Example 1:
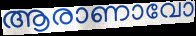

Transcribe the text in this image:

ആരാണാവോ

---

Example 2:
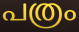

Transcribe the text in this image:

പത്രം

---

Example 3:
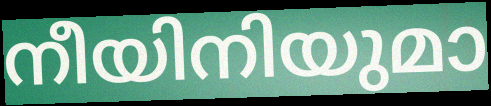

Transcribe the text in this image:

നീയിനിയുമാ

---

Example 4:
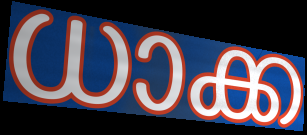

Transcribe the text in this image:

ധാക്ക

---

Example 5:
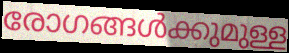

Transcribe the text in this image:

രോഗങ്ങൾക്കുമുള്ള